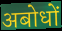
अबोधों